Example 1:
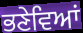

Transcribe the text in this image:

ਭਣੇਵਿਆਂ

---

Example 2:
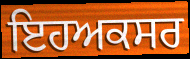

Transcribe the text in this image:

ਇਹਅਕਸਰ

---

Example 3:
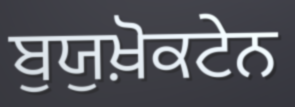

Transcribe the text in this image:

ਬੁਯੁਖ਼ੋਕਟੇਨ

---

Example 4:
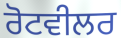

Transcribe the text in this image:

ਰੋਟਵੀਲਰ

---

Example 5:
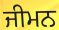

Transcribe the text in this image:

ਜੀਮਨ